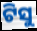
ଟିସୁ